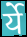
र्ये